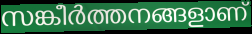
സങ്കീർത്തനങ്ങളാണ്